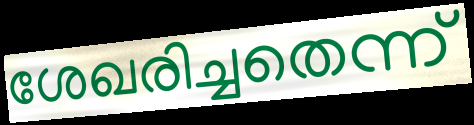
ശേഖരിച്ചതെന്ന്